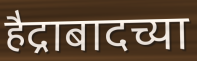
हैद्राबादच्या